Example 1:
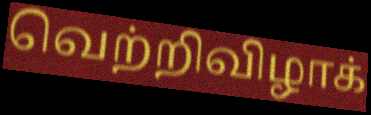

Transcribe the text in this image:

வெற்றிவிழாக்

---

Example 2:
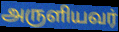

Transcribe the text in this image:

அருளியவர்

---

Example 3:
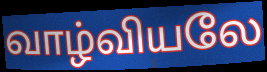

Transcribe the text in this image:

வாழ்வியலே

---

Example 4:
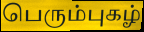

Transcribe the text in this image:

பெரும்புகழ்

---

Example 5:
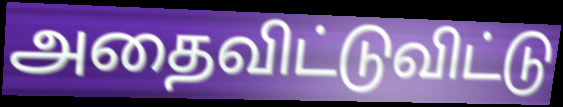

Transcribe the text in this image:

அதைவிட்டுவிட்டு